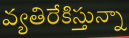
వ్యతిరేకిస్తున్నా